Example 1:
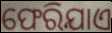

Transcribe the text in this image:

ଫେରିଯାଏ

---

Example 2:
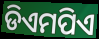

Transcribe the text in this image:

ଡିଏମପିଏ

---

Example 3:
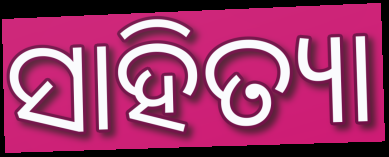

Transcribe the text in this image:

ସାହିତ୍ୟା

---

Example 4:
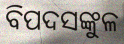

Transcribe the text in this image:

ବିପଦସଙ୍କୁଳ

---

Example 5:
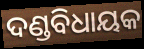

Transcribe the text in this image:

ଦଣ୍ଡବିଧାୟକ